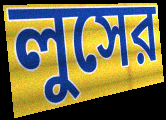
লুসের